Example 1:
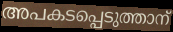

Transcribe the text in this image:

അപകടപ്പെടുത്താന്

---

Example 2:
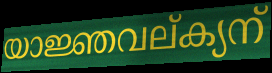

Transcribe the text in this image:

യാജ്ഞവല്ക്യന്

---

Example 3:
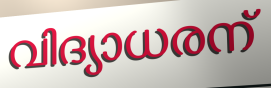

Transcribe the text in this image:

വിദ്യാധരന്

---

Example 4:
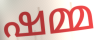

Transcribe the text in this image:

ഷമ്മ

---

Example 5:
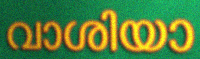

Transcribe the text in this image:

വാശിയാ